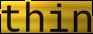
thin